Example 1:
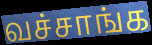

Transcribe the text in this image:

வச்சாங்க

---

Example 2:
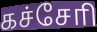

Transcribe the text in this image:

கச்சேரி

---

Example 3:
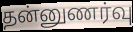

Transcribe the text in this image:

தன்னுணர்வு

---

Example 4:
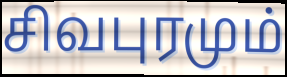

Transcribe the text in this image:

சிவபுரமும்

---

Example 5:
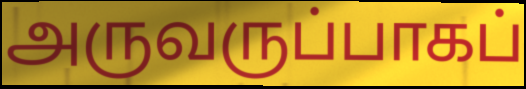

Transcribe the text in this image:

அருவருப்பாகப்